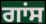
ਗਾਂਸ